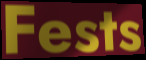
Fests